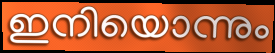
ഇനിയൊന്നും